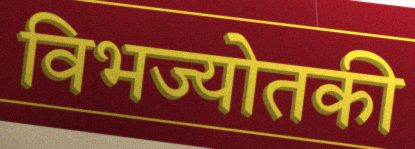
विभज्योतकी